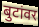
बुटांवर